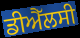
ਡੀਐੱਲਸੀ